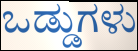
ಒಡ್ಡುಗಳು